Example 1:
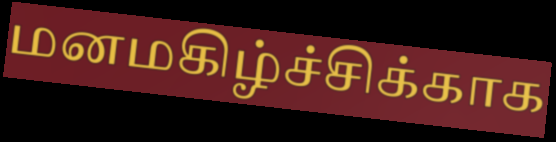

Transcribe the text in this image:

மனமகிழ்ச்சிக்காக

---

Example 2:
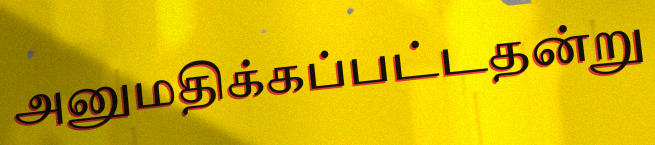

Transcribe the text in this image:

அனுமதிக்கப்பட்டதன்று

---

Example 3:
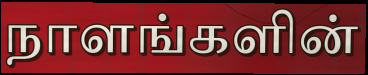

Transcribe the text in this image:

நாளங்களின்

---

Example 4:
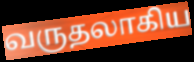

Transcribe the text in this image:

வருதலாகிய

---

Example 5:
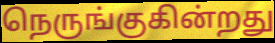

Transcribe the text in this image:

நெருங்குகின்றது